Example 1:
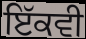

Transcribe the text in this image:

ਇੱਕਵੀ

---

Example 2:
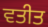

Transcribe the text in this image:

ਵਤੀਤ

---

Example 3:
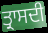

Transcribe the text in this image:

ਤ੍ਰਾਸਦੀ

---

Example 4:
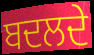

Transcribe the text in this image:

ਬਦਲਦੇ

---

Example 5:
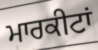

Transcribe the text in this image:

ਮਾਰਕੀਟਾਂ